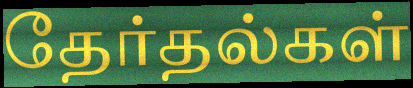
தேர்தல்கள்